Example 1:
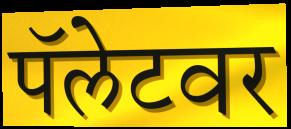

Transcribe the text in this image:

पॅलेटवर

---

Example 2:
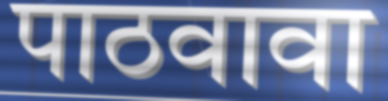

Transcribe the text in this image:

पाठवावा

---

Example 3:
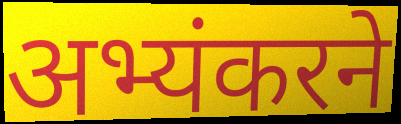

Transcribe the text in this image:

अभ्यंकरने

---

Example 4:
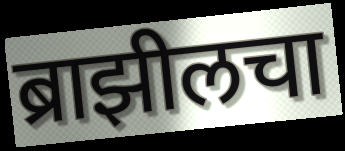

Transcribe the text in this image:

ब्राझीलचा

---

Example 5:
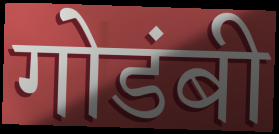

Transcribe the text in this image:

गोडंबी